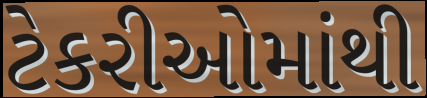
ટેકરીઓમાંથી